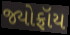
જ્યોફ્રૉય